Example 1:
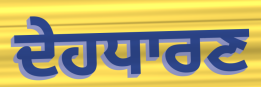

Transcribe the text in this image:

ਦੇਹਧਾਰਣ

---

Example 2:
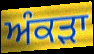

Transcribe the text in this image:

ਅੰਕੜਾ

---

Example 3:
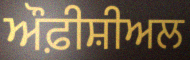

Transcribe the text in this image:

ਔਫ਼ੀਸ਼ੀਅਲ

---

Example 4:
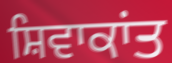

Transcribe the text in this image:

ਸ਼ਿਵਾਕਾਂਤ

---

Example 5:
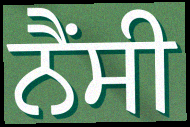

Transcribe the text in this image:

ਨੈਂਸੀ